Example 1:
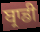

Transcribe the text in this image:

ਬ੍ਰਾਡੀ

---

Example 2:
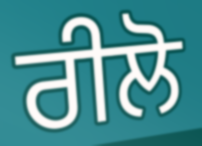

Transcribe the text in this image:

ਰੀਲੋ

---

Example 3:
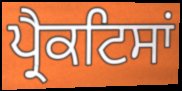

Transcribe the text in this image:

ਪ੍ਰੈਕਟਿਸਾਂ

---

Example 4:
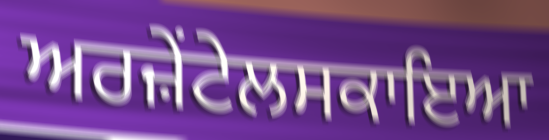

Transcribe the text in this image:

ਅਰਜ਼ੇਂਟੇਲਸਕਾਇਆ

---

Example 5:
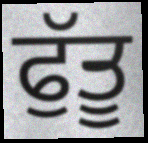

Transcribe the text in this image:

ਫੁੱਤੂ